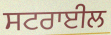
ਸਟਰਾਈਲ